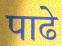
पाढे